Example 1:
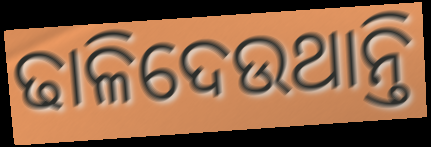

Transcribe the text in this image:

ଢାଳିଦେଉଥାନ୍ତି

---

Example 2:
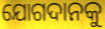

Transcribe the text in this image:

ଯୋଗଦାନକୁ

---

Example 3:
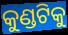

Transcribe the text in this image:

କୁଣ୍ଡଟିକୁ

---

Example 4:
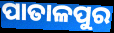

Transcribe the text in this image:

ପାତାଳପୁର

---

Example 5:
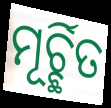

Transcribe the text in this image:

ମୂର୍ଚ୍ଛିତ